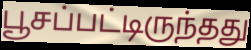
பூசப்பட்டிருந்தது